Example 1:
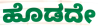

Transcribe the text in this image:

ಹೊಡದೇ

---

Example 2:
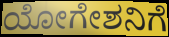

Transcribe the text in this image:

ಯೋಗೇಶನಿಗೆ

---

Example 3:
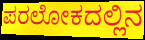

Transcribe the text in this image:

ಪರಲೋಕದಲ್ಲಿನ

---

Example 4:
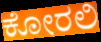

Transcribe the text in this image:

ಕೋರಲಿ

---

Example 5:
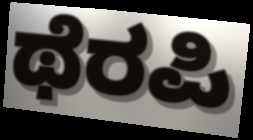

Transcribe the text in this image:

ಥೆರಪಿ